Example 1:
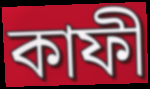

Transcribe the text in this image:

কাফী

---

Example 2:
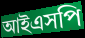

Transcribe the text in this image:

আইএসপি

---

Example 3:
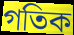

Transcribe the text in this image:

গতিক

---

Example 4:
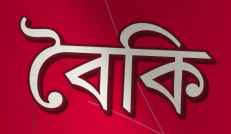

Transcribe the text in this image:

বৈকি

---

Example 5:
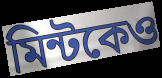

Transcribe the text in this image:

মিন্টকেও